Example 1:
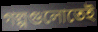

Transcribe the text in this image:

গল্পগুলোতেই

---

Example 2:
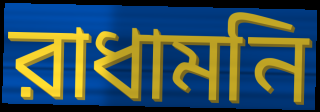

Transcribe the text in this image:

রাধামনি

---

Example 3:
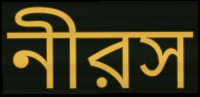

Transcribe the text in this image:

নীরস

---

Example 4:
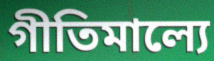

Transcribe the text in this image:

গীতিমাল্যে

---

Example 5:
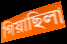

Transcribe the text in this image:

গিয়াছিলা